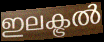
ഇലക്ട്രൽ